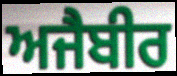
ਅਜੈਬੀਰ